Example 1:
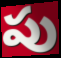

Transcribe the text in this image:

పు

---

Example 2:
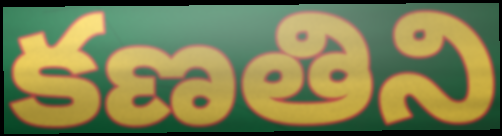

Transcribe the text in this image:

కణతిని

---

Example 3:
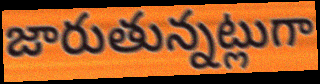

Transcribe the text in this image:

జారుతున్నట్లుగా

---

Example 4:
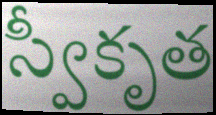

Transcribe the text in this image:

స్వీకృత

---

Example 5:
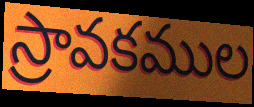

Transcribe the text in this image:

స్రావకముల